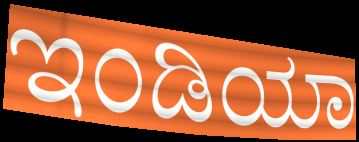
ಇಂಡಿಯಾ